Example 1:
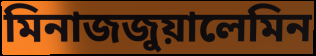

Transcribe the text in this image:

মিনাজজুয়ালেমিন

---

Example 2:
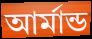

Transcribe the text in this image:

আর্মান্ড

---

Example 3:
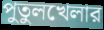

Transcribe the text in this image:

পুতুলখেলার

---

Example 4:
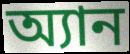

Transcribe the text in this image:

অ্যান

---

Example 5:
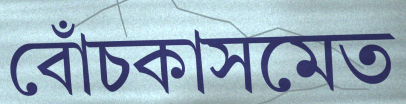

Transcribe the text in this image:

বোঁচকাসমেত